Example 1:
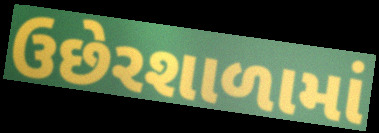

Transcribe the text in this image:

ઉછેરશાળામાં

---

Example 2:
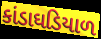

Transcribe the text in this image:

કાંડાઘડિયાળ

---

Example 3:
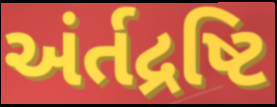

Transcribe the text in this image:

અંર્તદ્રષ્ટિ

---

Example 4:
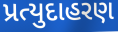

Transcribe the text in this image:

પ્રત્યુદાહરણ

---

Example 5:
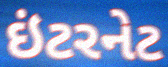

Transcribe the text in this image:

ઇંટરનેટ